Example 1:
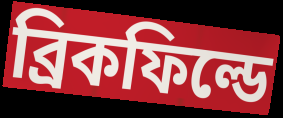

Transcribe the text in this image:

ব্রিকফিল্ডে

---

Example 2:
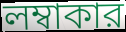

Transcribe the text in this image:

লম্বাকার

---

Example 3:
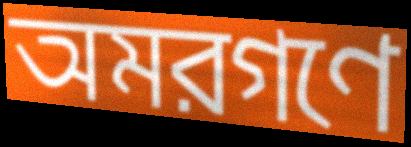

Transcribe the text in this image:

অমরগণে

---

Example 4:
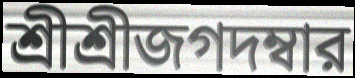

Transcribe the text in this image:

শ্রীশ্রীজগদম্বার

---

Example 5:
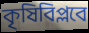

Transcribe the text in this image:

কৃষিবিপ্লবে